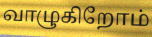
வாழுகிறோம்